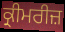
ਕ੍ਰੀਮਰੀਜ਼